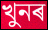
খুনৰ